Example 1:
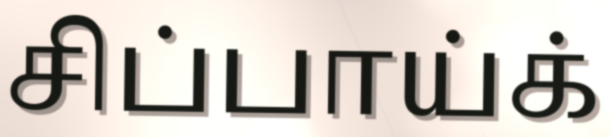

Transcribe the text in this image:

சிப்பாய்க்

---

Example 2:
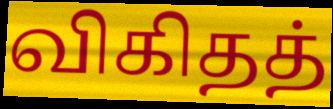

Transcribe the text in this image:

விகிதத்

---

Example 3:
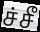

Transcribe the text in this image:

ச்சீ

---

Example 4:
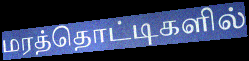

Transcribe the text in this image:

மரத்தொட்டிகளில்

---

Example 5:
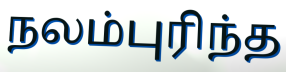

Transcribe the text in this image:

நலம்புரிந்த